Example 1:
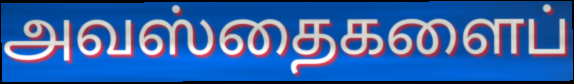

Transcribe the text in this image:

அவஸ்தைகளைப்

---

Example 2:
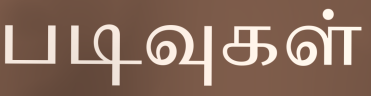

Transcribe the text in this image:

படிவுகள்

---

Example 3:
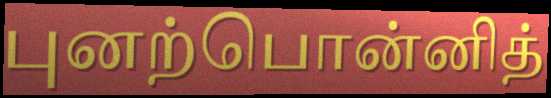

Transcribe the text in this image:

புனற்பொன்னித்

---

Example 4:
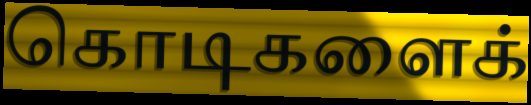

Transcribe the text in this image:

கொடிகளைக்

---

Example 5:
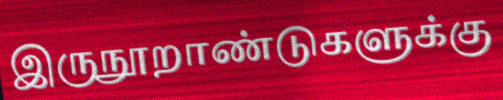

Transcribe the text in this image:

இருநூறாண்டுகளுக்கு